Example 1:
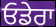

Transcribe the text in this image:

ਓਡੇਰਾ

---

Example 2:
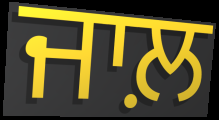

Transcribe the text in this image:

ਜਾਲ਼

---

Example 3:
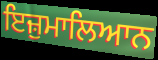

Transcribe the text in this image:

ਇਜ਼ੁਮਾਲਿਆਨ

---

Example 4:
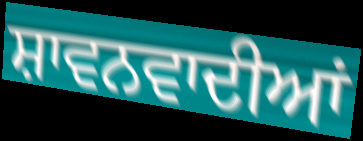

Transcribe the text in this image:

ਸ਼ਾਵਨਵਾਦੀਆਂ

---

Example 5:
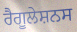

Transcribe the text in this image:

ਰੈਗੂਲੇਸ਼ਨਸ